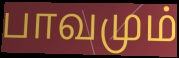
பாவமும்